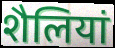
शैलियां